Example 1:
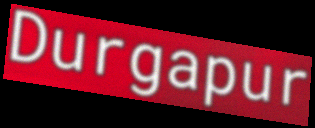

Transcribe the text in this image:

Durgapur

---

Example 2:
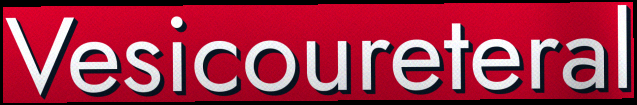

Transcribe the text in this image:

Vesicoureteral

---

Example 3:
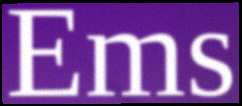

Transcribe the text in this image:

Ems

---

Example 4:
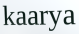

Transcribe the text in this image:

kaarya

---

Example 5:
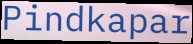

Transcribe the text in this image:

Pindkapar